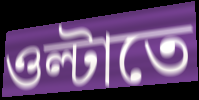
ওল্টাতে